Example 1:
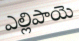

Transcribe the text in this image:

ఎల్లిపాయె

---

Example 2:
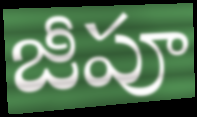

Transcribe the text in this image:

జీపూ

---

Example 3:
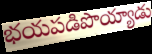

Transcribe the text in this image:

భయపడిపొయ్యాడు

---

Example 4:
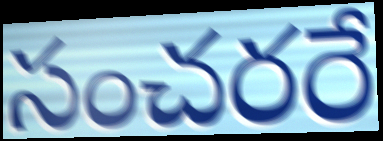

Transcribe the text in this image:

సంచరరే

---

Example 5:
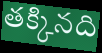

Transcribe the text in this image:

తక్కినది